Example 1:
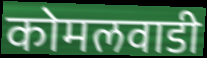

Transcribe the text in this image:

कोमलवाडी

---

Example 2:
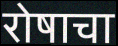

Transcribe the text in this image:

रोषाचा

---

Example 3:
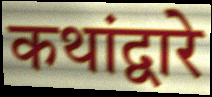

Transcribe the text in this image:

कथांद्वारे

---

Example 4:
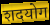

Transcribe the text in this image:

शदयोग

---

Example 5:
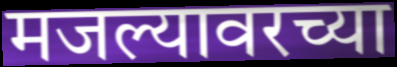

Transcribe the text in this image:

मजल्यावरच्या